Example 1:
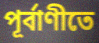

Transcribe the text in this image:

পূর্বাণীতে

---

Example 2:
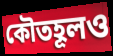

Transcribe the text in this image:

কৌতহূলও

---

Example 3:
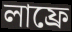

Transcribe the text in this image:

লাফ্রে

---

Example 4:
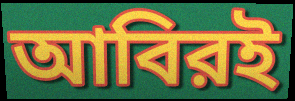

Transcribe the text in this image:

আবিরই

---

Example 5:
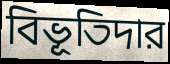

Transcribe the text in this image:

বিভূতিদার